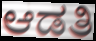
ಆಡತಿ